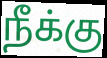
நீக்கு